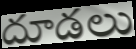
దూడలు